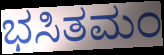
ಭಸಿತಮಂ